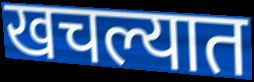
खचल्यात